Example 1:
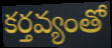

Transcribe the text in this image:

కర్తవ్యంతో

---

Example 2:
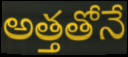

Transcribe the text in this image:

అత్తతోనే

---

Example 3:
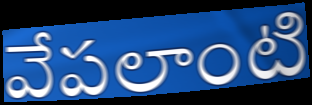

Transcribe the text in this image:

వేపలాంటి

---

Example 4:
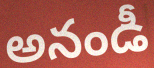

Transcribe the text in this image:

అనండీ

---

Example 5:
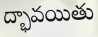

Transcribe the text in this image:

ద్భావయితు